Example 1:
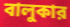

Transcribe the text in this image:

বালুকার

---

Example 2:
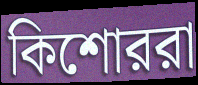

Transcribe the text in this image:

কিশোররা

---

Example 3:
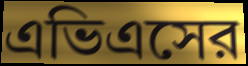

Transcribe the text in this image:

এভিএসের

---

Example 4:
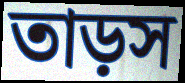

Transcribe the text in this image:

তাড়স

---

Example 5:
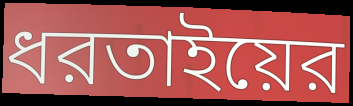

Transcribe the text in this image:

ধরতাইয়ের